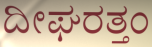
ದೀಘರತ್ತಂ